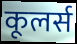
कूलर्स